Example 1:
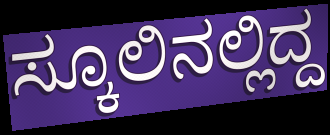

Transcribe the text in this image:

ಸ್ಕೂಲಿನಲ್ಲಿದ್ದ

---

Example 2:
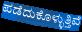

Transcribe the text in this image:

ಪಡೆದುಕೊಳ್ಳುತ್ತಿವೆ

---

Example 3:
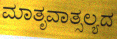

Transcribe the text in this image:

ಮಾತೃವಾತ್ಸಲ್ಯದ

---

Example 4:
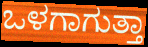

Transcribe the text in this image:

ಒಳಗಾಗುತ್ತಾ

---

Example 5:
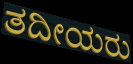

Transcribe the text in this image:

ತದೀಯರು